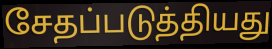
சேதப்படுத்தியது